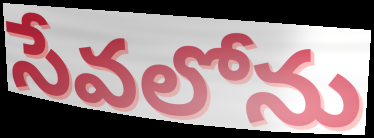
సేవలోను